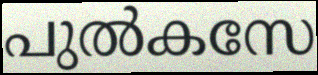
പുൽകസേ